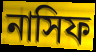
নাসিফ